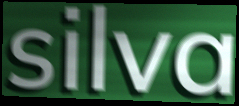
silva